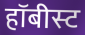
हॉबीस्ट